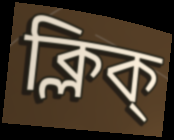
ক্লিক্